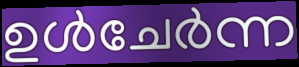
ഉൾചേർന്ന